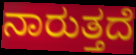
ನಾರುತ್ತದೆ